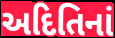
અદિતિનાં